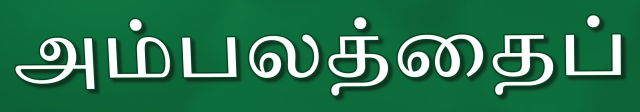
அம்பலத்தைப்